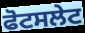
ਫੋਟਸਲੇਟ